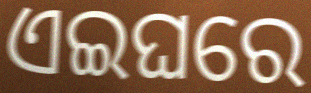
ଏଇଘରେ